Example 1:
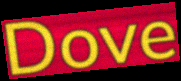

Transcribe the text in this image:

Dove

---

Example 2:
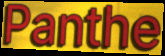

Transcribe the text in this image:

Panthe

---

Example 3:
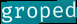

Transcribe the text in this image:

groped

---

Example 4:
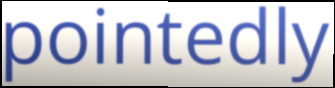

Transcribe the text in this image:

pointedly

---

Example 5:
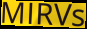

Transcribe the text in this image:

MIRVs